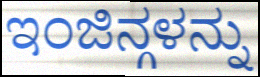
ಇಂಜಿನ್ಗಳನ್ನು